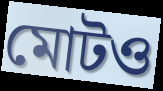
মোটও